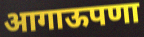
आगाऊपणा